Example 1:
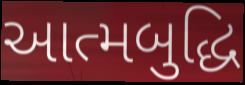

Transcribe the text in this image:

આત્મબુદ્ધિ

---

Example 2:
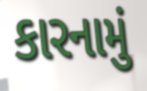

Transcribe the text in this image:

કારનામું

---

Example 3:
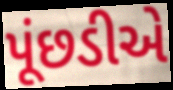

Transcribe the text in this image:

પૂંછડીએ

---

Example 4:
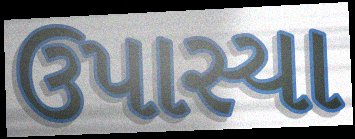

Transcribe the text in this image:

ઉપાસ્યા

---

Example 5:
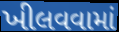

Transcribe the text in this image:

ખીલવવામાં